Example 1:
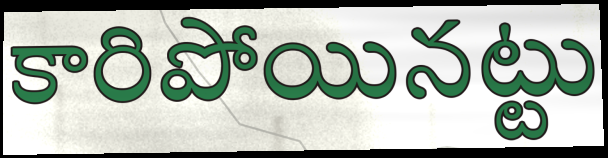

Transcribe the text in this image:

కారిపోయినట్టు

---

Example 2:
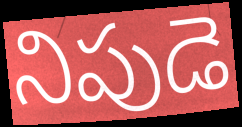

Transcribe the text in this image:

నిపుడె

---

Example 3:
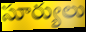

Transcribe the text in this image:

సూర్యులు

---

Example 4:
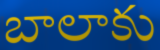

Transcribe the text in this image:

బాలాకు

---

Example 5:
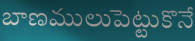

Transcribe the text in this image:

బాణములుపెట్టుకొనే